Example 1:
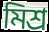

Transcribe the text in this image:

মিশ্ৰ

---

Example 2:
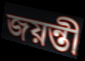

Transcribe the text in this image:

জয়ন্তী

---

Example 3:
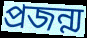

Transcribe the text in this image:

প্ৰজন্ম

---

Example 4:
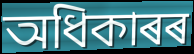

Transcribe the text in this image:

অধিকাৰৰ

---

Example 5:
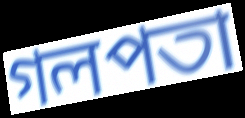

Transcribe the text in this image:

গলপতা